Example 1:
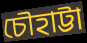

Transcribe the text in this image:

চৌহাট্টা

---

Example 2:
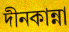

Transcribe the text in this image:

দীনকান্না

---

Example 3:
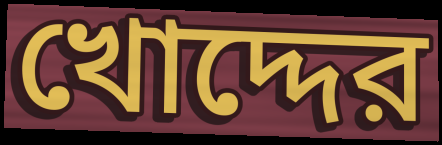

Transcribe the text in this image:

খোদ্দের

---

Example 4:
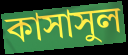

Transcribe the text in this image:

কাসাসুল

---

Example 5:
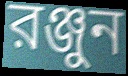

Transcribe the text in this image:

রঞ্জুন